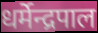
धर्मेन्द्रपाल